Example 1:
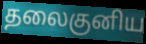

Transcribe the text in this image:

தலைகுனிய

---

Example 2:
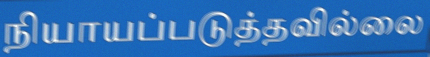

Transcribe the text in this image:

நியாயப்படுத்தவில்லை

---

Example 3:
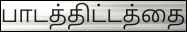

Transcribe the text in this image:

பாடத்திட்டத்தை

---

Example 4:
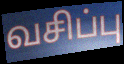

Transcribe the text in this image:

வசிப்பு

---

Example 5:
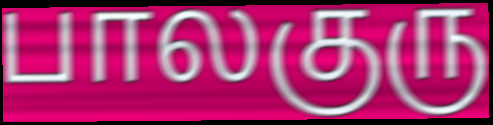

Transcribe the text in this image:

பாலகுரு